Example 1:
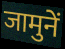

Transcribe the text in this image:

जामुनें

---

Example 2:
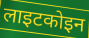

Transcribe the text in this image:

लाइटकोइन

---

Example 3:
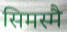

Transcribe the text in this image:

सिमस्मै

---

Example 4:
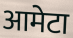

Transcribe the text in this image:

आमेटा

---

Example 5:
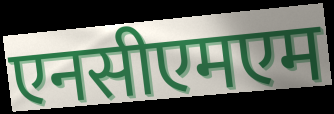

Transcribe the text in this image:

एनसीएमएम